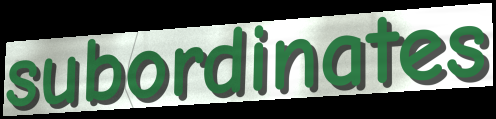
subordinates